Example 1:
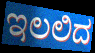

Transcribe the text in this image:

ಇಲಲಿದ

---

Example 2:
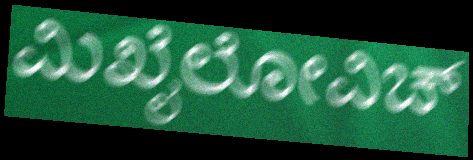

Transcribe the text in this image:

ಮಿಖೈಲೋವಿಚ್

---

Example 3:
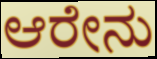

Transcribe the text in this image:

ಆರೇನು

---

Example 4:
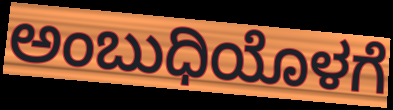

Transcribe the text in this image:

ಅಂಬುಧಿಯೊಳಗೆ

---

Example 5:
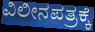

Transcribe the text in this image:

ವಿಲೀನಪತ್ರಕ್ಕೆ